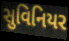
સુવિનિયર